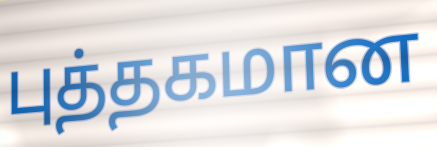
புத்தகமான